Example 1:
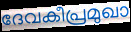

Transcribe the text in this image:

ദേവകീപ്രമുഖാ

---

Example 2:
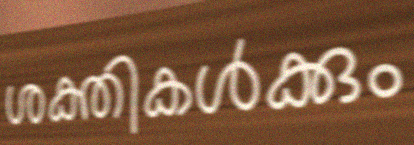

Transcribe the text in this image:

ശക്തികൾക്കും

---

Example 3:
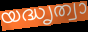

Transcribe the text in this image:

യദ്ധൃത്വാ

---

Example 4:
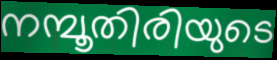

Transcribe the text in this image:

നമ്പൂതിരിയുടെ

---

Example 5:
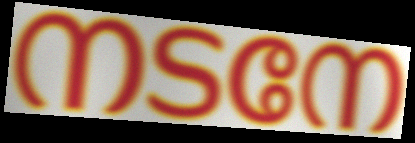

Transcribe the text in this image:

നടനേ